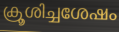
ക്രൂശിച്ചശേഷം